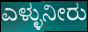
ಎಳ್ಳುನೀರು